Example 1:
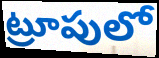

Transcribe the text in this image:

ట్రూపులో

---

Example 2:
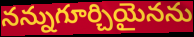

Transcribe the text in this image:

నన్నుగూర్చియైనను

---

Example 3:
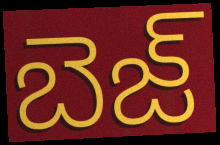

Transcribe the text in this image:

బెజ్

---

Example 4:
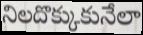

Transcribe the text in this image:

నిలదొక్కుకునేలా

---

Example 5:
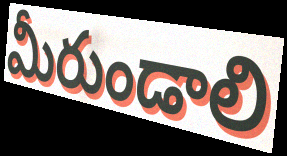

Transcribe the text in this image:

మీరుండాలి